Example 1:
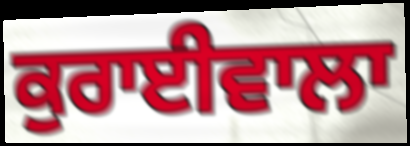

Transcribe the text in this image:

ਕੁਰਾਈਵਾਲਾ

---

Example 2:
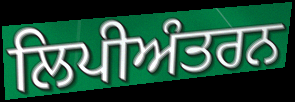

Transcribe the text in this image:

ਲਿਪੀਅੰਤਰਨ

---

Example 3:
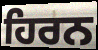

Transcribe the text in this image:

ਹਿਰਨ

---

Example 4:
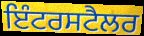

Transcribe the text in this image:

ਇੰਟਰਸਟੈਲਰ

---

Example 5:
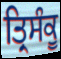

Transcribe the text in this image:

ਤ੍ਰਿਸੰਕੂ